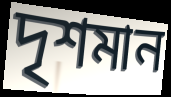
দৃশমান